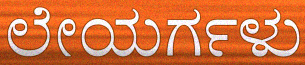
ಲೇಯರ್ಗಳು